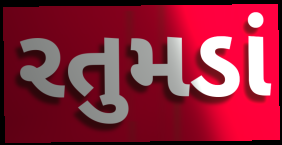
રતુમડાં